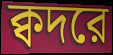
ক্বদরে